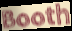
Booth